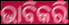
ଭାବିକରି